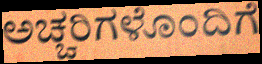
ಅಚ್ಚರಿಗಳೊಂದಿಗೆ